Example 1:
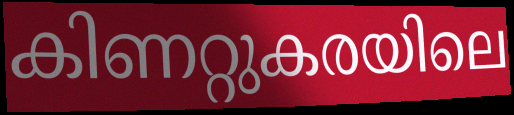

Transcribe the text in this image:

കിണറ്റുകരയിലെ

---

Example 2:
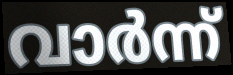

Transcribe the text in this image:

വാർന്ന്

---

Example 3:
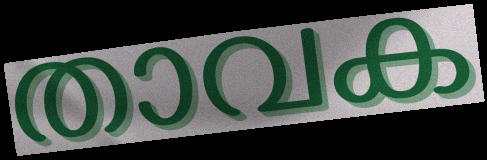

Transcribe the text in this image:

താവക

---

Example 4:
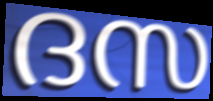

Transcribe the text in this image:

ദസ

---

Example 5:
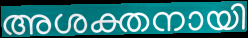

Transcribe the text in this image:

അശക്തനായി